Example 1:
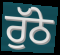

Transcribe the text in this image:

ਰੁੱਠੇ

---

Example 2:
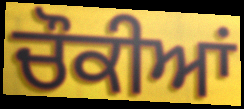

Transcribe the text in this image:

ਚੌਕੀਆਂ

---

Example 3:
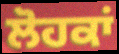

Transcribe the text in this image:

ਲੋਹਕਾਂ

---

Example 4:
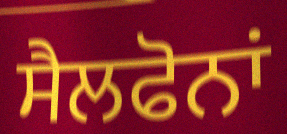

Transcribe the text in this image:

ਸੈਲਫੋਨਾਂ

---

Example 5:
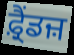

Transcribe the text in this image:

ਫ਼੍ਰੈਂਡਜ਼